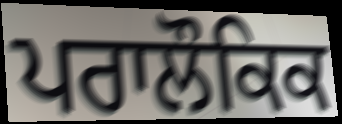
ਪਰਾਲੌਕਿਕ